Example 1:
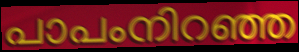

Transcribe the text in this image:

പാപംനിറഞ്ഞ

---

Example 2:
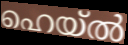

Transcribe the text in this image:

ഹെയ്ൽ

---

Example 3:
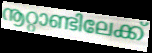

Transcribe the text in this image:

നൂറ്റാണ്ടിലേക്ക്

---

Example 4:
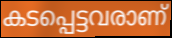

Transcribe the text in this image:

കടപ്പെട്ടവരാണ്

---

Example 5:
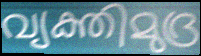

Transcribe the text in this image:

വ്യക്തിമുദ്ര